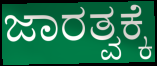
ಜಾರತ್ವಕ್ಕೆ